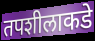
तपशीलाकडे